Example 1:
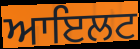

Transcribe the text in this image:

ਆਇਲਟ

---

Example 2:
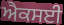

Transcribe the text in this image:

ਐਕਸਈ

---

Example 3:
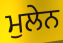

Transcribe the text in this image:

ਮੁਲੇਨ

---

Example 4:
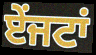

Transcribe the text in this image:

ਏਂਜਟਾਂ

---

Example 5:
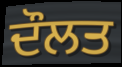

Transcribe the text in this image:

ਦੌਲਤ